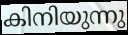
കിനിയുന്നു